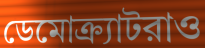
ডেমোক্র্যাটরাও